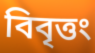
বিবৃত্তং